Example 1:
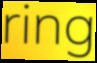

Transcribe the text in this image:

ring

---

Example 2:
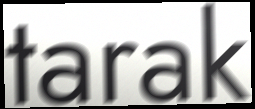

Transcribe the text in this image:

tarak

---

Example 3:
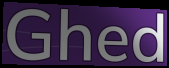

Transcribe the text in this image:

Ghed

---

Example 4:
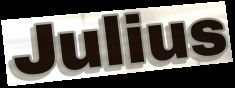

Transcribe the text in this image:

Julius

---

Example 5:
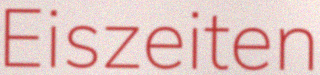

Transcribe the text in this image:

Eiszeiten